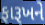
ફારૂખને